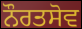
ਨੌਰਤਸੋਵ